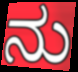
ನು